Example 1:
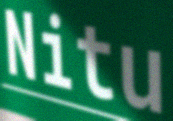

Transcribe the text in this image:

Nitu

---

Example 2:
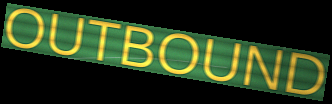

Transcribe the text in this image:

OUTBOUND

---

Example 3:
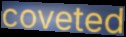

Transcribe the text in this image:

coveted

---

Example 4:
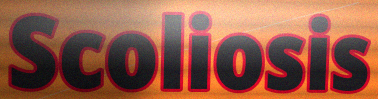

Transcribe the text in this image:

Scoliosis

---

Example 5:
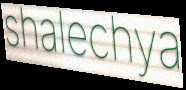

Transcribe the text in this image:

shalechya